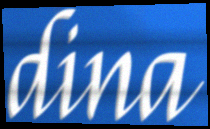
dina